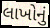
લાખોનું